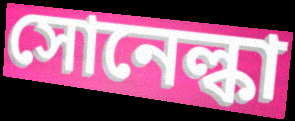
সোনেল্কা